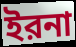
ইরনা